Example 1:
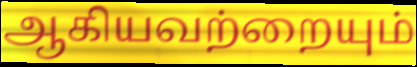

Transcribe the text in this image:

ஆகியவற்றையும்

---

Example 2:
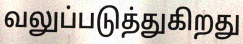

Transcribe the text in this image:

வலுப்படுத்துகிறது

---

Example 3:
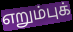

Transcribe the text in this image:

எறும்புக்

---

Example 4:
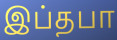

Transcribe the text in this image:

இப்தபா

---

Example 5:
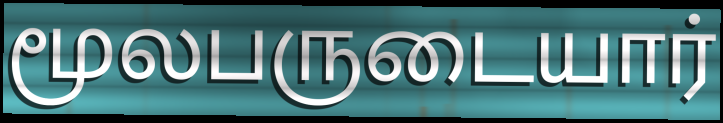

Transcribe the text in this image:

மூலபருடையார்